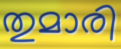
തുമാരി